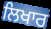
ਲਿਖਾਰ